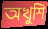
অখুশি